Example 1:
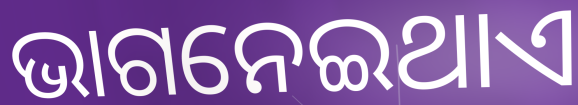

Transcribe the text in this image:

ଭାଗନେଇଥାଏ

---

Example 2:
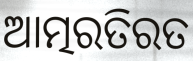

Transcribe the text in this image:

ଆତ୍ମରତିରତ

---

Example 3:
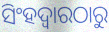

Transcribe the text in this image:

ସିଂହଦ୍ୱାରଠାରୁ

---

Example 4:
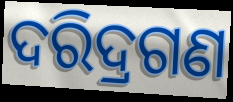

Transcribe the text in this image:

ଦରିଦ୍ରଗଣ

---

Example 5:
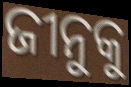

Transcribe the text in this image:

ଜୀନୁକୁ